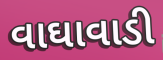
વાઘાવાડી